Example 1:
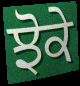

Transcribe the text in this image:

ਝੋਕੇ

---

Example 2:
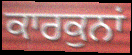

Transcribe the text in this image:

ਕਾਰਕੁਨਾਂ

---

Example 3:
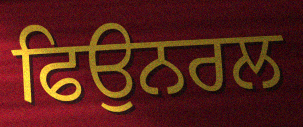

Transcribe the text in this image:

ਫਿਉਨਰਲ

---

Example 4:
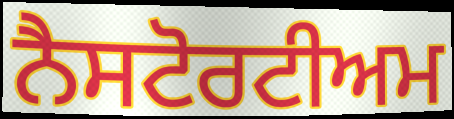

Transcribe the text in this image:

ਨੈਸਟੋਰਟੀਅਮ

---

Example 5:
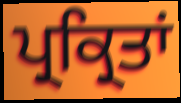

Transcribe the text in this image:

ਪ੍ਰਕ੍ਰਿਤਾਂ